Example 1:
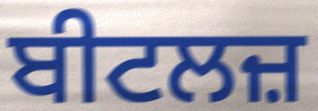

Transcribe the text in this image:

ਬੀਟਲਜ਼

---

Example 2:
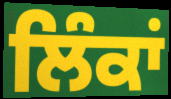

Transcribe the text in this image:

ਲਿੰਕਾਂ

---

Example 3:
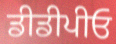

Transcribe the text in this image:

ਡੀਡੀਪੀਓ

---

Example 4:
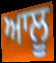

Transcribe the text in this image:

ਆਲੂ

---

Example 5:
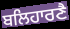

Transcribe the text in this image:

ਬਲਿਹਾਰਣੈ